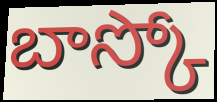
బాస్కో